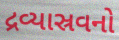
દ્રવ્યાસ્રવનો